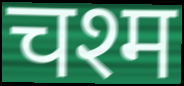
चश्म